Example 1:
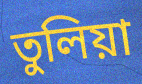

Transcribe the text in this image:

তুলিয়া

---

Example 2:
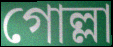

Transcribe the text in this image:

গোল্লা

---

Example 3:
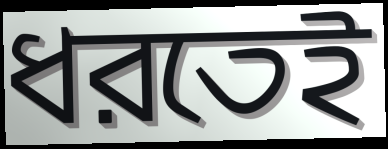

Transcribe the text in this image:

ধরতেই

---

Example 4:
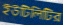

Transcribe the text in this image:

ইউটিলিটির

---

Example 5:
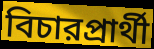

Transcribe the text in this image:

বিচারপ্রার্থী